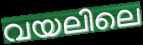
വയലിലെ